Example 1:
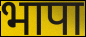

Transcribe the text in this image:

भापा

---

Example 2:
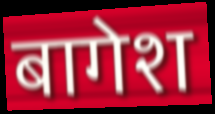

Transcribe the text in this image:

बागेश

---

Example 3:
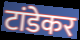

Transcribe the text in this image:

टांडेकर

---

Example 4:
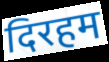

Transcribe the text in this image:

दिरहम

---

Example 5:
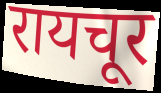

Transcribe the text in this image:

रायचूर